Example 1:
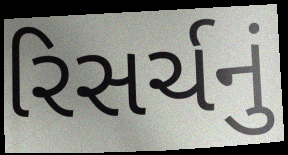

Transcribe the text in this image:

રિસર્ચનું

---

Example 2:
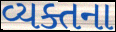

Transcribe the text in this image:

વ્યક્તના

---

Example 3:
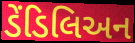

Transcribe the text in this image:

ડેંડિલિઅન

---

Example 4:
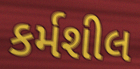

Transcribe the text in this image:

કર્મશીલ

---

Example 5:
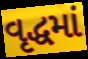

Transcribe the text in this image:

વૃદ્ધમાં